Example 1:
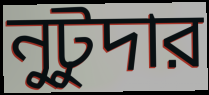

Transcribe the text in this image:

নুটুদার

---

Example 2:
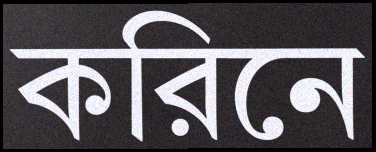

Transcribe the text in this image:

করিনে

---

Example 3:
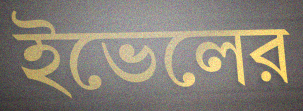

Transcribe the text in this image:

ইভেলের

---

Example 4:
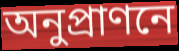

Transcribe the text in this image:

অনুপ্রাণনে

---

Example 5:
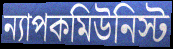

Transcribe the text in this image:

ন্যাপকমিউনিস্ট